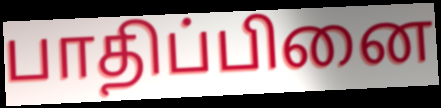
பாதிப்பினை